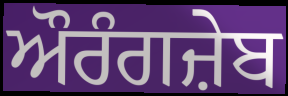
ਔਰੰਗਜ਼ੇਬ